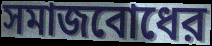
সমাজবোধের